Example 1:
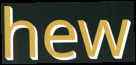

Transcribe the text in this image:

hew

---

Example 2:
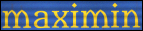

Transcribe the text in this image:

maximin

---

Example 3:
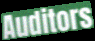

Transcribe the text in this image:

Auditors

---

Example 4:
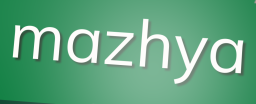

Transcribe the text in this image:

mazhya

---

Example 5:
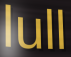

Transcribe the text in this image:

lull